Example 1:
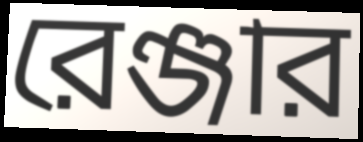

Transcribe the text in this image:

রেঞ্জার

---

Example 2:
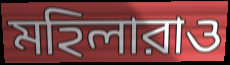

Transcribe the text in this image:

মহিলারাও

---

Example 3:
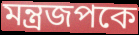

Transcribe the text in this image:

মন্ত্রজপকে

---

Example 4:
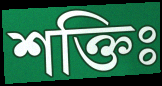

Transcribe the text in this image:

শক্তিঃ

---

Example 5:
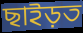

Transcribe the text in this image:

ছাইড়ত